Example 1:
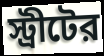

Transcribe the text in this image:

স্ট্রীটের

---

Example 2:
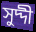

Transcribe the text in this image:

সুদ্দী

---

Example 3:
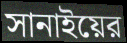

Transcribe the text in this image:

সানাইয়ের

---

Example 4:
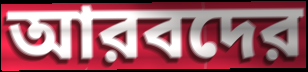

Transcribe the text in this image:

আরবদের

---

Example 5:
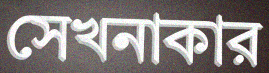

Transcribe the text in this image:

সেখনাকার